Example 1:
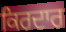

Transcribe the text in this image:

ਕਿਰਦਾਰ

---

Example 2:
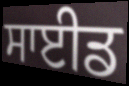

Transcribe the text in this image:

ਸਾਈਡ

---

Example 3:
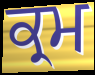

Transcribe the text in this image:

ਕ੍ਰਮ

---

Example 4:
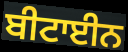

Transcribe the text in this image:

ਬੀਟਾਈਨ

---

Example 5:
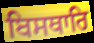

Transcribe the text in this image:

ਬਿਸਥਾਰਿ